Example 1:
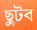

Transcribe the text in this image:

ছুটব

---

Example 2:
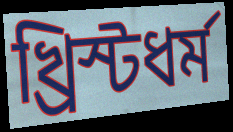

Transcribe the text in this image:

খ্রিস্টধর্ম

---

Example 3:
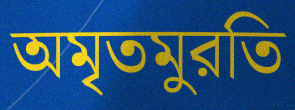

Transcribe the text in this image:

অমৃতমুরতি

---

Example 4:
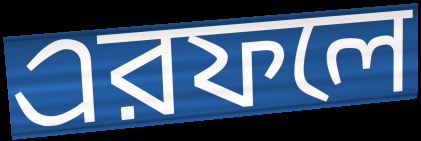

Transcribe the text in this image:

এরফলে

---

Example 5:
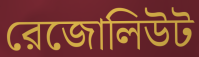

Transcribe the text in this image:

রেজোলিউট